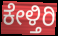
ಕೇಳ್ತಿರಿ